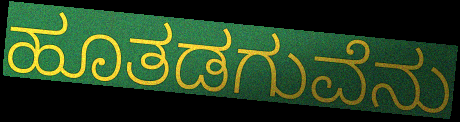
ಹೂತಡಗುವೆನು